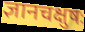
ज्ञानचक्षुषः